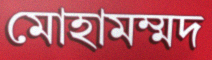
মোহামম্মদ